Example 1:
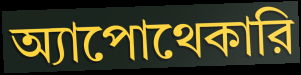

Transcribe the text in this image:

অ্যাপোথেকারি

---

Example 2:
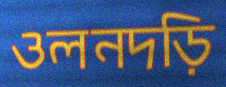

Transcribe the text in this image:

ওলনদড়ি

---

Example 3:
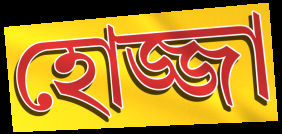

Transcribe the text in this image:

হোজ্জা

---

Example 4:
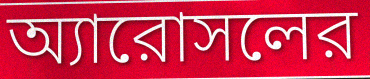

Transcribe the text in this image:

অ্যারোসলের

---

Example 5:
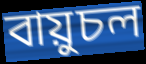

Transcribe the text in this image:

বায়ুচল